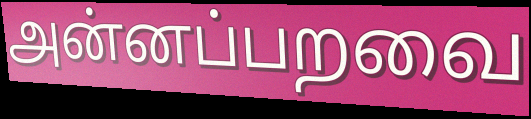
அன்னப்பறவை